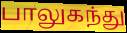
பாலுகந்து